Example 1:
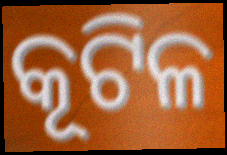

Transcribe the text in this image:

କୂଟିଳ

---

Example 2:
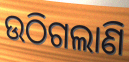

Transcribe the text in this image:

ଉଠିଗଲାଣି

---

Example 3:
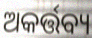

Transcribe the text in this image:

ଅକର୍ତ୍ତବ୍ୟ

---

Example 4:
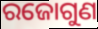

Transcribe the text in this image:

ରଜୋଗୁଣ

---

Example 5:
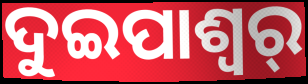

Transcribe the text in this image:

ଦୁଇପାଶ୍ୱର୍